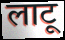
लाटू